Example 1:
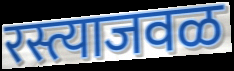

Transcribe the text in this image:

रस्त्याजवळ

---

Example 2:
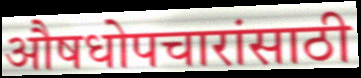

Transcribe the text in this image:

औषधोपचारांसाठी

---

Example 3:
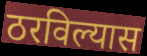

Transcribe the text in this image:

ठरविल्यास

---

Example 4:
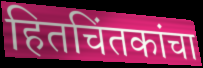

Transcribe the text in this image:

हितचिंतकांचा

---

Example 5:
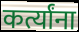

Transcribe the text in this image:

कर्त्यांना